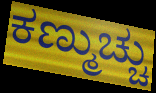
ಕಣ್ಮುಚ್ಚು